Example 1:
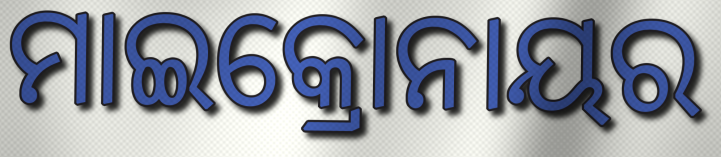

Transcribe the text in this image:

ମାଇକ୍ରୋନାୟର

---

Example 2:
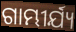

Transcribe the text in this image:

ଗାମ୍ଭୀର୍ଯ୍ୟ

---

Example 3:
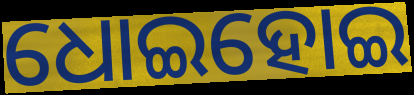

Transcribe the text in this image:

ଧୋଇହୋଇ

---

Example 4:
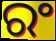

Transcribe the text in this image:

ରଂ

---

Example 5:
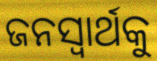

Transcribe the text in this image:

ଜନସ୍ବାର୍ଥକୁ